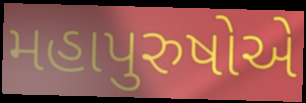
મહાપુરુષોએ